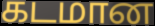
கடமான